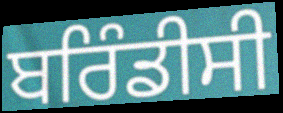
ਬਰਿੰਡੀਸੀ